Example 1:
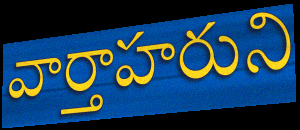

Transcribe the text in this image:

వార్తాహరుని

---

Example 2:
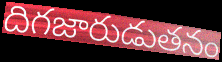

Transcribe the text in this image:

దిగజారుడుతనం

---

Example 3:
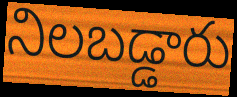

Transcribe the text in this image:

నిలబడ్డారు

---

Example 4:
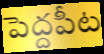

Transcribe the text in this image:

పెద్దపీట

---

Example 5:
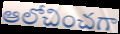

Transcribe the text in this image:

ఆలోచించగా